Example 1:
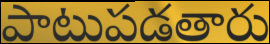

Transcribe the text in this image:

పాటుపడతారు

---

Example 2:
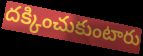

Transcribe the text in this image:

దక్కించుకుంటారు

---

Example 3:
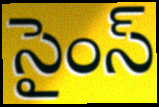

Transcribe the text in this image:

సైంస్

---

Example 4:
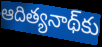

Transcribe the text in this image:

ఆదిత్యనాథ్‌కు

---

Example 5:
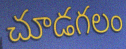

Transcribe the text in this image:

చూడగలం